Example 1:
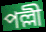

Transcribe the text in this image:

পল্লী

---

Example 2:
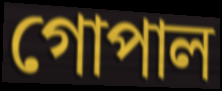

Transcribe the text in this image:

গোপাল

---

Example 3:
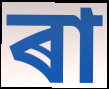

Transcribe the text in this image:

ৰা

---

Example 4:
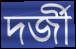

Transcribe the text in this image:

দৰ্জী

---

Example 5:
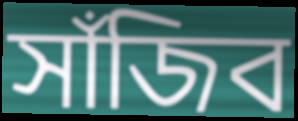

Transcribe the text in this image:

সাঁজিব